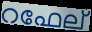
റഫേല്